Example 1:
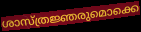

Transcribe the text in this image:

ശാസ്ത്രജ്ഞരുമൊക്കെ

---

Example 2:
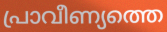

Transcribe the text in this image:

പ്രാവീണ്യത്തെ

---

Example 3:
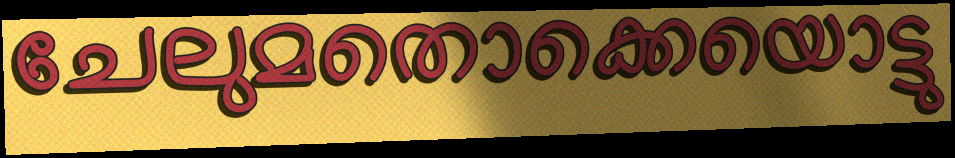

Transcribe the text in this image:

ചേലുമതൊക്കെയൊട്ടു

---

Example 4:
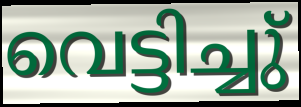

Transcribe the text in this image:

വെട്ടിച്ചു്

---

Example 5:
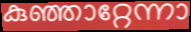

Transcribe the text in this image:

കുഞ്ഞാറ്റേന്നാ